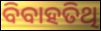
ବିବାହତିଥି